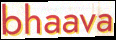
bhaava